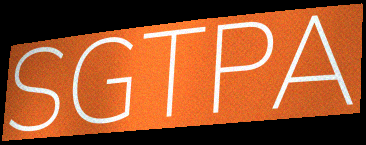
SGTPA